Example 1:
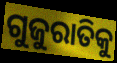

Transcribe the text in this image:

ଗୁଜୁରାତିକୁ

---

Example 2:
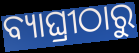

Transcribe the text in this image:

ବ୍ୟାଘ୍ରୀଠାରୁ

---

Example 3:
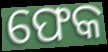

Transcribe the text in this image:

ଫେକ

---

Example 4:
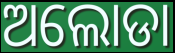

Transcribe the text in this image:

ଅଲୋଡା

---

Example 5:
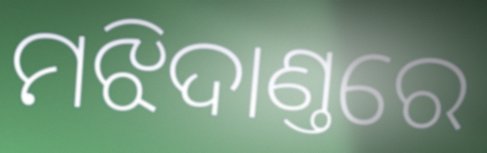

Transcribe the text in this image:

ମଝିଦାଣ୍ତରେ